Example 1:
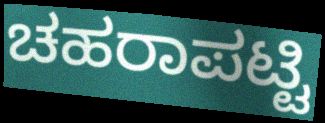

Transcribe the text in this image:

ಚಹರಾಪಟ್ಟಿ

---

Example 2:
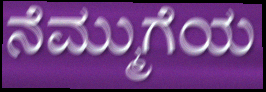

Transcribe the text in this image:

ನೆಮ್ಮುಗೆಯ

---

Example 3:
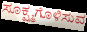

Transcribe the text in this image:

ಸೂಕ್ಷ್ಮಗೊಳಿಸುವ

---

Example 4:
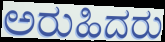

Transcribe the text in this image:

ಅರುಹಿದರು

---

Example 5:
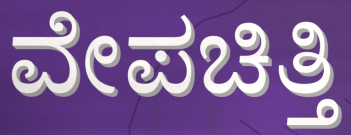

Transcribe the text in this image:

ವೇಪಚಿತ್ತಿ